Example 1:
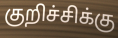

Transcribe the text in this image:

குறிச்சிக்கு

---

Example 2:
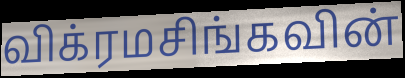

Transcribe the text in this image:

விக்ரமசிங்கவின்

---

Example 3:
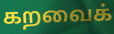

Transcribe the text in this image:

கறவைக்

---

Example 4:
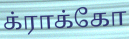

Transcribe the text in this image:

க்ராக்கோ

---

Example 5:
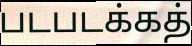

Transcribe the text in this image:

படபடக்கத்